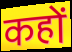
कहों